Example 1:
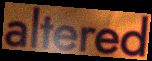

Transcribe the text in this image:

altered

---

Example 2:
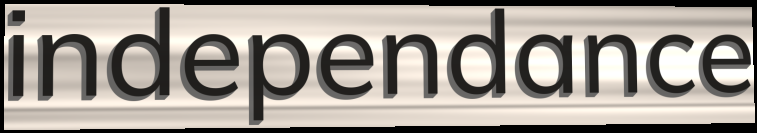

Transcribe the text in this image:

independance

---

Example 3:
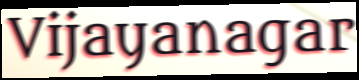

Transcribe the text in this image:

Vijayanagar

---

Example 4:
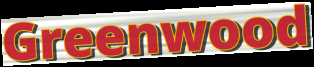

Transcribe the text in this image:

Greenwood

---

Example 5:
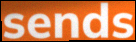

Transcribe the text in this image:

sends